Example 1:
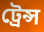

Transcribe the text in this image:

ট্রেন্স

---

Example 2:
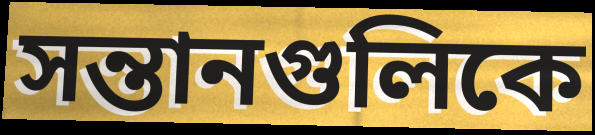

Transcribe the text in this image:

সন্তানগুলিকে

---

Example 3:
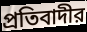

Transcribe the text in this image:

প্রতিবাদীর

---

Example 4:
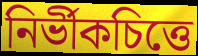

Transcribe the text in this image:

নির্ভীকচিত্তে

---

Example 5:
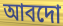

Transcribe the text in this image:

আবদো